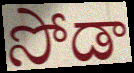
సోడా